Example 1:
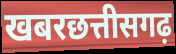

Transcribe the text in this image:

खबरछत्तीसगढ़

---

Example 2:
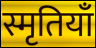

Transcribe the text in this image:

स्मृतियाँ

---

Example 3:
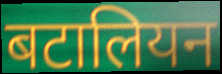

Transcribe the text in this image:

बटालियन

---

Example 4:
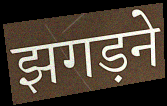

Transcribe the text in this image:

झगड़ने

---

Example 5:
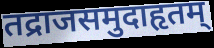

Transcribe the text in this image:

तद्राजसमुदाहृतम्